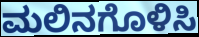
ಮಲಿನಗೊಳಿಸಿ